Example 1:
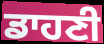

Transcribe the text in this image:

ਡਾਹਣੀ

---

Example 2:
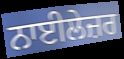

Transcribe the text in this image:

ਨਾਈਲੇਜ਼ਰ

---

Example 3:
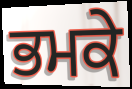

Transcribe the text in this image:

ਭਮਕੇ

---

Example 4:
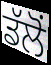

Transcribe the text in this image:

ਡੱਲੋਂ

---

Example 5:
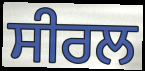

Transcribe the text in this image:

ਸੀਰਲ